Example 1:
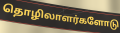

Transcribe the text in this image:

தொழிலாளர்களோடு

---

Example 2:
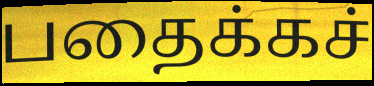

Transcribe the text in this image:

பதைக்கச்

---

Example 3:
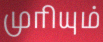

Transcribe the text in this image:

முரியும்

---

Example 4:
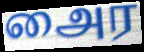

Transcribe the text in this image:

அைர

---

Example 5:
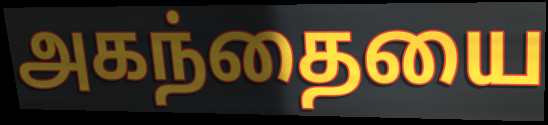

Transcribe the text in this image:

அகந்தையை